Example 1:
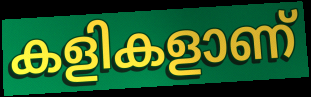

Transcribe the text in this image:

കളികളാണ്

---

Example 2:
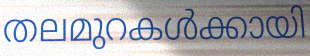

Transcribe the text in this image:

തലമുറകൾക്കായി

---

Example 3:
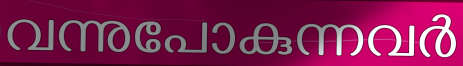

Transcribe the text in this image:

വന്നുപോകുന്നവർ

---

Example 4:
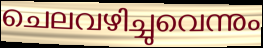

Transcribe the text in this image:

ചെലവഴിച്ചുവെന്നും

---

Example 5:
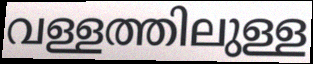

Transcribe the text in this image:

വള്ളത്തിലുള്ള